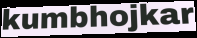
kumbhojkar